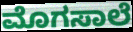
ಮೊಗಸಾಲೆ